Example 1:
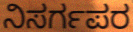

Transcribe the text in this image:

ನಿಸರ್ಗಪರ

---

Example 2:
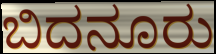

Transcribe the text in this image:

ಬಿದನೂರು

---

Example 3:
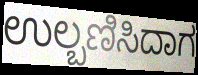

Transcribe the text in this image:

ಉಲ್ಬಣಿಸಿದಾಗ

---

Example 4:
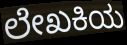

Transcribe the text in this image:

ಲೇಖಕಿಯ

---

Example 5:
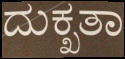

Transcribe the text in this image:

ದುಕ್ಖತಾ